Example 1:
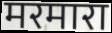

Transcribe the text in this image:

मरमारा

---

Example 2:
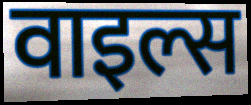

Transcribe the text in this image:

वाइल्स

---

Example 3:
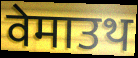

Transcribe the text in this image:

वेमाउथ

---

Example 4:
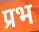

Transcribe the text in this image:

प्रभ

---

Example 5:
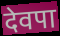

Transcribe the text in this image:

देवपा